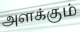
அளக்கும்